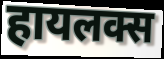
हायलक्स